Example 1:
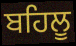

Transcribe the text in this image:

ਬਹਿਲੂ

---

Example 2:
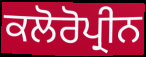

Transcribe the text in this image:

ਕਲੋਰੋਪ੍ਰੀਨ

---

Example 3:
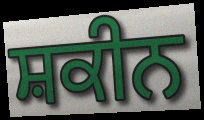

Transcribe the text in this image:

ਸ਼ਕੀਨ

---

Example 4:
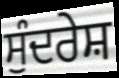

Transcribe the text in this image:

ਸੁੰਦਰੇਸ਼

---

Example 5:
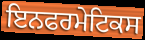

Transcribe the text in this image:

ਇਨਫਰਮੇਟਿਕਸ